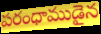
పరంధాముడైన